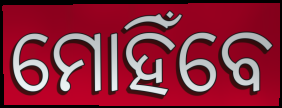
ମୋହିଁବେ